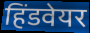
हिंडवेयर